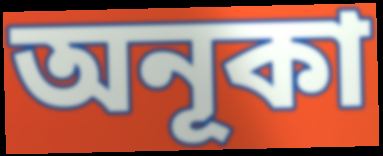
অনূকা